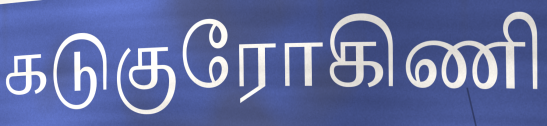
கடுகுரோகிணி